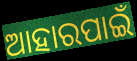
ଆହାରପାଇଁ